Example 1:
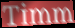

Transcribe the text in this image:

Timm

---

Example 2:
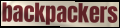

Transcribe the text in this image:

backpackers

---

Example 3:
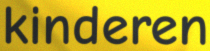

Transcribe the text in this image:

kinderen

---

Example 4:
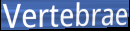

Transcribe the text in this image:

Vertebrae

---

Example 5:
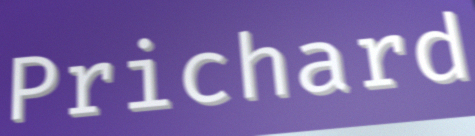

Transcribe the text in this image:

Prichard